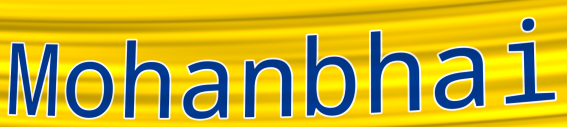
Mohanbhai